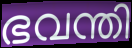
ഭവന്തി